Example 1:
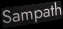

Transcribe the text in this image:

Sampath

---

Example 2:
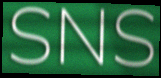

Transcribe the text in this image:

SNS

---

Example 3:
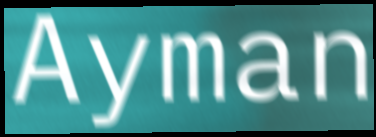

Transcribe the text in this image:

Ayman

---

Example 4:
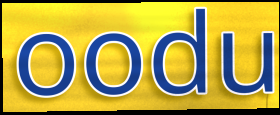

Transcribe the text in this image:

oodu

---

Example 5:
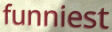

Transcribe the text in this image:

funniest